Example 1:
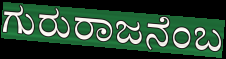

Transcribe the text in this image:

ಗುರುರಾಜನೆಂಬ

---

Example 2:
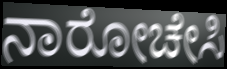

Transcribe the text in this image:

ನಾರೋಚೇಸಿ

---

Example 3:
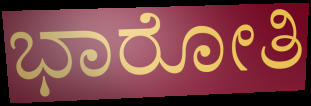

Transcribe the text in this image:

ಭಾರೋತಿ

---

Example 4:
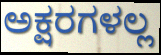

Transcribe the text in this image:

ಅಕ್ಷರಗಳಲ್ಲ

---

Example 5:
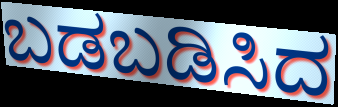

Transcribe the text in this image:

ಬಡಬಡಿಸಿದ